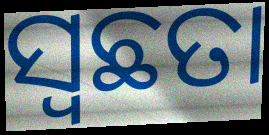
ସ୍ବଛତା